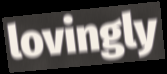
lovingly